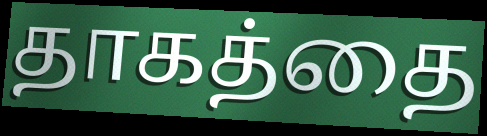
தாகத்தை